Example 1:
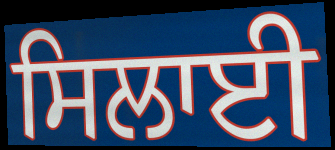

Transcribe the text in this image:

ਸਿਲਾਈ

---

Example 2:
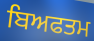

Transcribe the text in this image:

ਬਿਅਫਤਮ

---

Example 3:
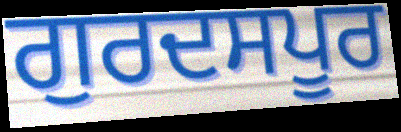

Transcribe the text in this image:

ਗੁਰਦਸਪੂਰ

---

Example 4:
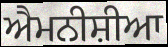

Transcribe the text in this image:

ਐਮਨੀਸ਼ੀਆ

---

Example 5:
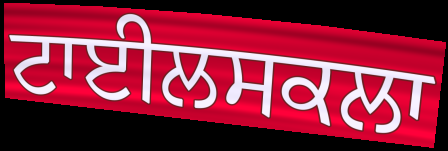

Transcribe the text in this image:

ਟਾਈਲਸਕਲਾ